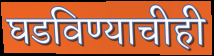
घडविण्याचीही